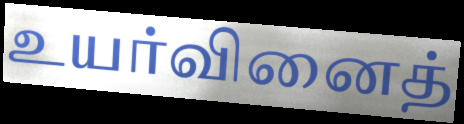
உயர்வினைத்